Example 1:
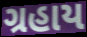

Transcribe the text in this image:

ગ્રહાય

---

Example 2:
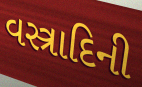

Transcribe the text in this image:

વસ્ત્રાદિની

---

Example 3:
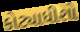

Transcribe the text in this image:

કોટ્યાધીશો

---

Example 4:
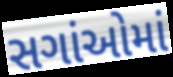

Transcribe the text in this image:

સગાંઓમાં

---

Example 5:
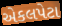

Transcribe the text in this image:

એકલપેટા